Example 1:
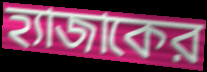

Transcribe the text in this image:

হ্যাজাকের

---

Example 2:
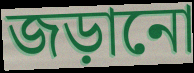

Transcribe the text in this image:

জড়ানো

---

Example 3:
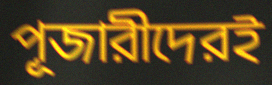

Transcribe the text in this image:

পূজারীদেরই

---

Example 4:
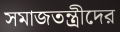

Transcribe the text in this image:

সমাজতন্ত্রীদের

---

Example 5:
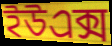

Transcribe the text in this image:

ইউএক্স